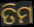
ତିମ